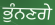
ਭੁੰਨਣਗੇ